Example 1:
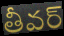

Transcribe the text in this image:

తీవర్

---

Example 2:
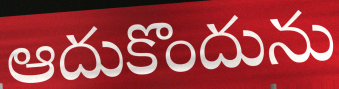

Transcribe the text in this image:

ఆదుకొందును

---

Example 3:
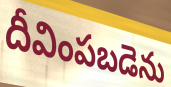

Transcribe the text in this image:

దీవింపబడెను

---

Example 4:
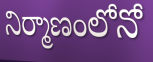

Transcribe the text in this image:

నిర్మాణంలోనో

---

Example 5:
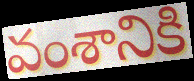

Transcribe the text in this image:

వంశానికి